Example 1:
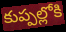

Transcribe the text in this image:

కుప్పల్లోకి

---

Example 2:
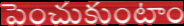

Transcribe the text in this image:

పెంచుకుంటాం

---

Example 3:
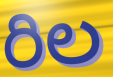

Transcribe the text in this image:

రిల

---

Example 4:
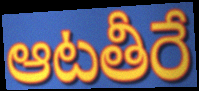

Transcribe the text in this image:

ఆటతీరే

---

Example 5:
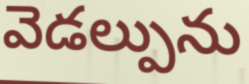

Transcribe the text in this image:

వెడల్పును